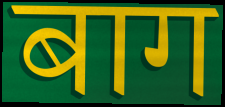
बाग